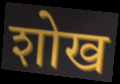
शोख